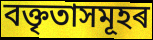
বক্তৃতাসমূহৰ